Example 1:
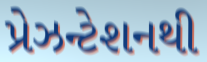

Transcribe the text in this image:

પ્રેઝન્ટેશનથી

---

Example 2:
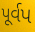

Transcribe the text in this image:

પૂર્વપ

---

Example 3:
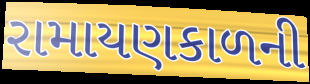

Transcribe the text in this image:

રામાયણકાળની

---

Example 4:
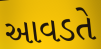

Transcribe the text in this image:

આવડતે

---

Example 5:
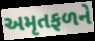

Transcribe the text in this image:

અમૃતફળને